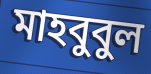
মাহবুবুল